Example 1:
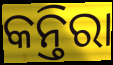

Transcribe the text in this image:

କନ୍ତିରା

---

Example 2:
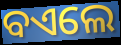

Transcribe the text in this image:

ବଏଲେ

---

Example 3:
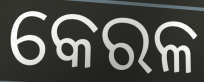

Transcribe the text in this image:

କେରଳ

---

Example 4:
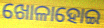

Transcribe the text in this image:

ଖୋଳାହୋଇ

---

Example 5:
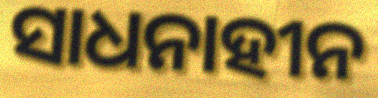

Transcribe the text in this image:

ସାଧନାହୀନ